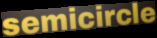
semicircle